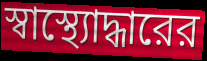
স্বাস্থ্যোদ্ধারের